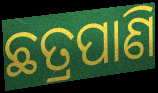
ଛତ୍ରପାଣି